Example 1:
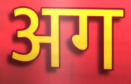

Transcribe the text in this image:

अग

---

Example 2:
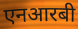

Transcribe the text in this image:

एनआरबी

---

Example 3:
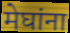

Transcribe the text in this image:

मेघांना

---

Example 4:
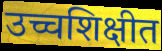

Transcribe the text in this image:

उच्चशिक्षीत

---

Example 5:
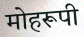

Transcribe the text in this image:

मोहरूपी